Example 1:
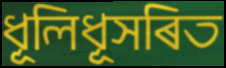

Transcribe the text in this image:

ধূলিধূসৰিত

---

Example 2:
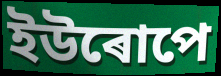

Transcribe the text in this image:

ইউৰোপে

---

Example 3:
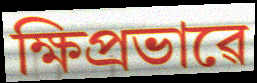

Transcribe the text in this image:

ক্ষিপ্ৰভাৱে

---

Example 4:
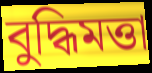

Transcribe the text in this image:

বুদ্ধিমত্তা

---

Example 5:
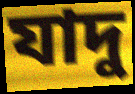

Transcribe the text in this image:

যাদু